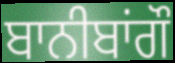
ਬਾਨੀਬਾਂਗੌ